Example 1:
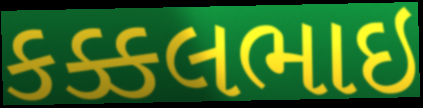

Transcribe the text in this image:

કક્કલભાઇ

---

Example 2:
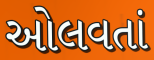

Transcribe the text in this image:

ઓલવતાં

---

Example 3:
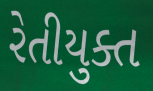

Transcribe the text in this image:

રેતીયુક્ત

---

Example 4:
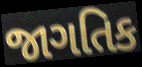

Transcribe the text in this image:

જાગતિક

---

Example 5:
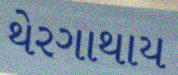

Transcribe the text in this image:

થેરગાથાય